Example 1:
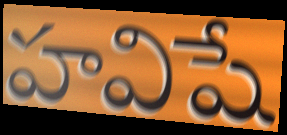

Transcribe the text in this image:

హవిషే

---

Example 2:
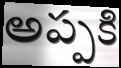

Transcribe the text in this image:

అప్పకి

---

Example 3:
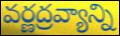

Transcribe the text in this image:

వర్ణద్రవ్యాన్ని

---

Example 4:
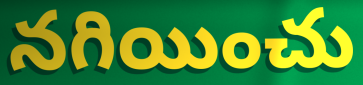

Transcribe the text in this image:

నగియించు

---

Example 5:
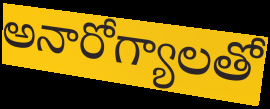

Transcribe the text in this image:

అనారోగ్యాలతో